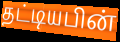
தட்டியபின்